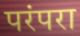
परंपरा